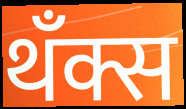
थँक्स